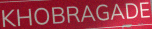
KHOBRAGADE